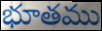
భూతము